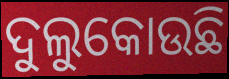
ଦୁଲୁକୋଉଛି